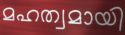
മഹത്വമായി